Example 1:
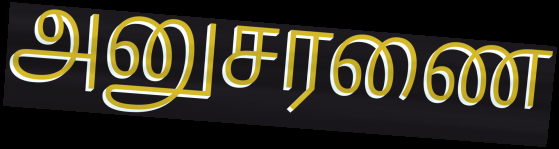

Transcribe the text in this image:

அனுசரணை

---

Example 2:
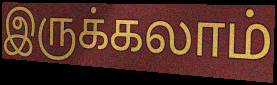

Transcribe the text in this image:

இருக்கலாம்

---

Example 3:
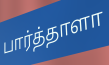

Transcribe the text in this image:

பார்த்தாளா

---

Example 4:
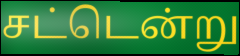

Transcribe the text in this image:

சட்டென்று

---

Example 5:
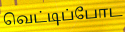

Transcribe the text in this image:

வெட்டிப்போட